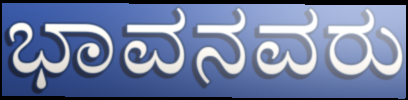
ಭಾವನವರು